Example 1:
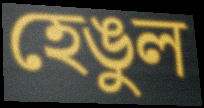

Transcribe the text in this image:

হেঙুল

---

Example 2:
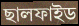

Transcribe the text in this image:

ছালফাইড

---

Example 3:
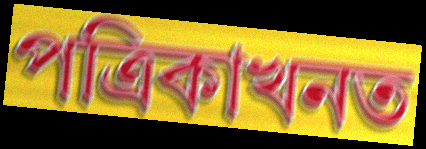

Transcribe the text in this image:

পত্ৰিকাখনত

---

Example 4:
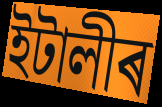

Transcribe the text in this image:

ইটালীৰ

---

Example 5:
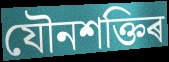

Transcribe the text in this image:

যৌনশক্তিৰ